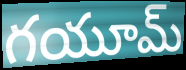
గయూమ్